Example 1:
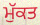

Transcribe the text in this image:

ਮੁੱਕਤ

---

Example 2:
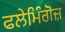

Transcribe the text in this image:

ਫਲੇਮਿੰਗੋਜ਼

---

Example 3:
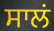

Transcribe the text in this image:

ਸਾਲਂ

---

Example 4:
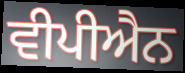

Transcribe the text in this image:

ਵੀਪੀਐਨ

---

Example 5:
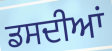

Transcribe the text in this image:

ਡਸਦੀਆਂ